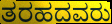
ತರಹದವರು